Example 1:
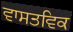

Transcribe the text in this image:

ਵਾਸਤਵਿਕ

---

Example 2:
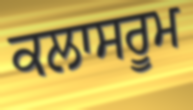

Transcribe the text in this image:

ਕਲਾਸਰੂਮ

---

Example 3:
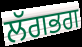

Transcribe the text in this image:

ਲੱਗਭਗ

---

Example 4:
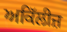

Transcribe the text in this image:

ਅਕਿੱਲੀਜ਼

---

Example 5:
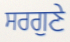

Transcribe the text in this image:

ਸਰਗੁਣੇ